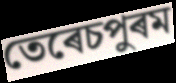
তেৰেচপুৰম